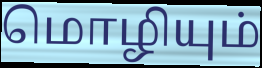
மொழியும்